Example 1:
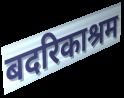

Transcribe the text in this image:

बदरिकाश्रम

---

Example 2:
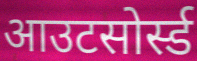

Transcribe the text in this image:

आउटसोर्स्ड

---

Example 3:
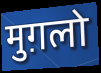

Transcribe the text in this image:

मुग़लो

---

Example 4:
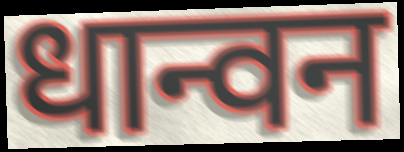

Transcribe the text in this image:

धान्वन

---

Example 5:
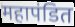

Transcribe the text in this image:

महापंडित